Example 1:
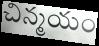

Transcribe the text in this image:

చిన్మయం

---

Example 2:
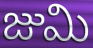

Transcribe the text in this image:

జుమి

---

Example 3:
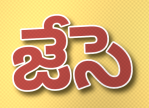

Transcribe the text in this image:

జేసె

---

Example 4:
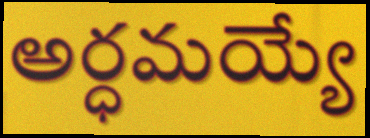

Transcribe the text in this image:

అర్ధమయ్యే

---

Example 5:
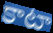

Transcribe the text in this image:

కాటా